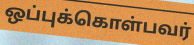
ஒப்புக்கொள்பவர்